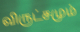
விருட்சமும்